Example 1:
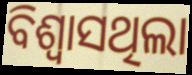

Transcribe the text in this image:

ବିଶ୍ୱାସଥିଲା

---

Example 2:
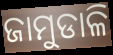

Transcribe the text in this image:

ଜାମୁଡାଳି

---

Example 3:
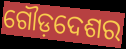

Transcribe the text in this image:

ଗୌଡ଼ଦେଶର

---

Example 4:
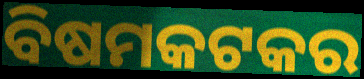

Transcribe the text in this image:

ବିଷମକଟକର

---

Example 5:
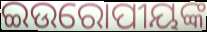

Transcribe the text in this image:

ଇଉରୋପୀୟଙ୍କ